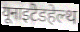
यूनाइटेडहेल्थ